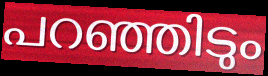
പറഞ്ഞിടും